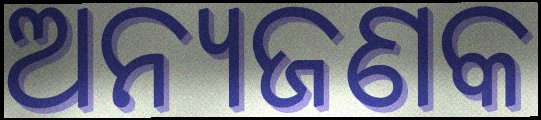
ଅନ୍ୟଜଣକ